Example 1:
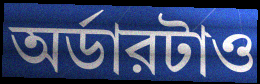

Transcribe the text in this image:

অর্ডারটাও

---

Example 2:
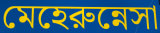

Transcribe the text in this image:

মেহেরুন্নেসা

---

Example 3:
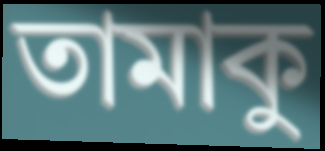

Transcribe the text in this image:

তামাকু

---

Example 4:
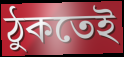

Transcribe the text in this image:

ঠুকতেই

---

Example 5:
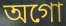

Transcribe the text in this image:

অগো